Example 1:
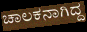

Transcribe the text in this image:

ಚಾಲಕನಾಗಿದ್ದ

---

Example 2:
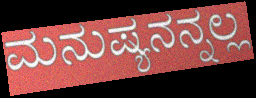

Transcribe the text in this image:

ಮನುಷ್ಯನನ್ನಲ್ಲ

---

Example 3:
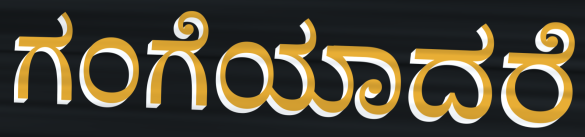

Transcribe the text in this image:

ಗಂಗೆಯಾದರೆ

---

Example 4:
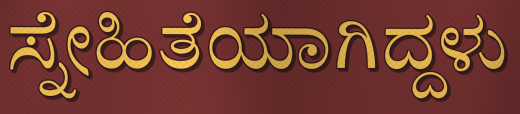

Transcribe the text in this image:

ಸ್ನೇಹಿತೆಯಾಗಿದ್ದಳು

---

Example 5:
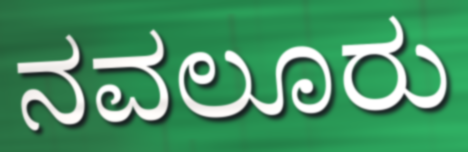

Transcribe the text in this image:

ನವಲೂರು